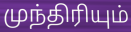
முந்திரியும்